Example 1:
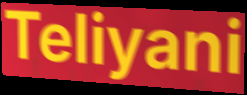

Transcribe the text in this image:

Teliyani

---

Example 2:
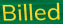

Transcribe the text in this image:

Billed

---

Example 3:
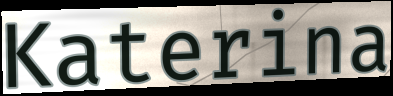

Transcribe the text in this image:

Katerina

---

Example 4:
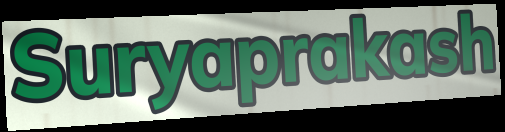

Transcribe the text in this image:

Suryaprakash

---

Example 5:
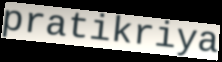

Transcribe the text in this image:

pratikriya